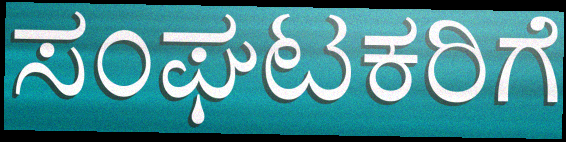
ಸಂಘಟಕರಿಗೆ